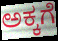
ಅಕ್ಕಗೆ